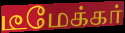
டீமேக்கர்